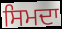
ਸਿਮਦਾ